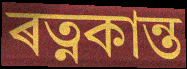
ৰত্নকান্ত